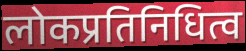
लोकप्रतिनिधित्व